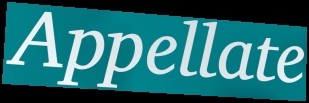
Appellate